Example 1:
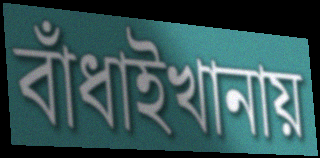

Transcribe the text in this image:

বাঁধাইখানায়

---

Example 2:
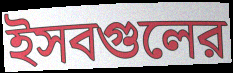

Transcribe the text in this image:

ইসবগুলের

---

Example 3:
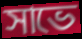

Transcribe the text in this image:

সাভে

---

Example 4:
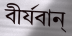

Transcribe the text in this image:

বীর্যবান্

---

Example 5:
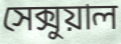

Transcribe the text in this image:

সেক্সুয়াল